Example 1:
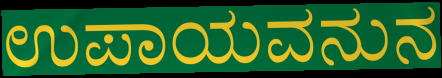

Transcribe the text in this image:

ಉಪಾಯವನುನ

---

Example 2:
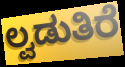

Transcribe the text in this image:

ಲ್ವಡುತಿರೆ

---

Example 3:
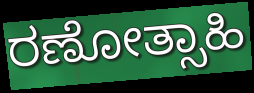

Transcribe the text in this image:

ರಣೋತ್ಸಾಹಿ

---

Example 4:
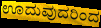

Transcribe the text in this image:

ಊದುವುದರಿಂದ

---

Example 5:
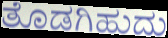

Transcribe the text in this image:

ತೊಡಗಿಹುದು